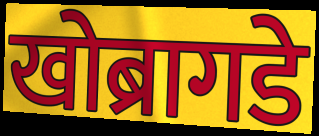
खोब्रागडे